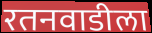
रतनवाडीला